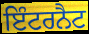
ਇੰਟਰਨੈਟ